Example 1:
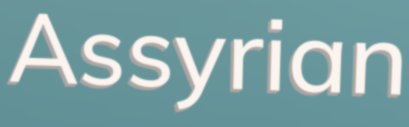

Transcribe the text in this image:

Assyrian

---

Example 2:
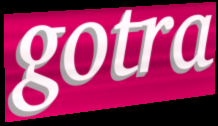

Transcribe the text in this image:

gotra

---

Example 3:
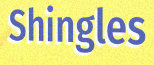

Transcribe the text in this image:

Shingles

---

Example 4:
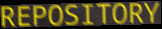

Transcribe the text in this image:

REPOSITORY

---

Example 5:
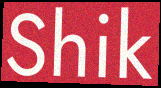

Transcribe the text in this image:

Shik